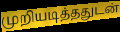
முறியடித்ததுடன்